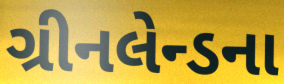
ગ્રીનલેન્ડના